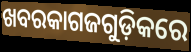
ଖବରକାଗଜଗୁଡ଼ିକରେ